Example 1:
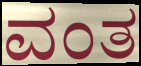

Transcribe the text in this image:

ವಂತ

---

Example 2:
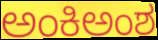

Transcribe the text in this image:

ಅಂಕಿಅಂಶ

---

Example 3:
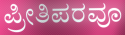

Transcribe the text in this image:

ಪ್ರೀತಿಪರವೂ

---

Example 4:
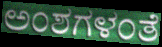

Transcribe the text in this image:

ಅಂಶಗಳಂತೆ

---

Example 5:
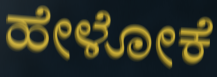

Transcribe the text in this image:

ಹೇಳೋಕೆ